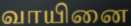
வாயினை